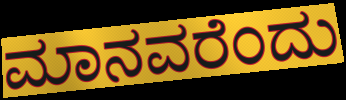
ಮಾನವರೆಂದು